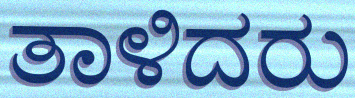
ತಾಳಿದರು